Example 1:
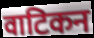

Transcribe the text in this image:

वाटिकन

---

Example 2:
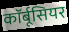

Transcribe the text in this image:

कॉर्बूसियर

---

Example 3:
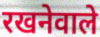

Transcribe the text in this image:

रखनेवाले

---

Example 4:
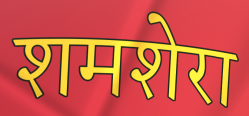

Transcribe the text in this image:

शमशेरा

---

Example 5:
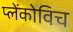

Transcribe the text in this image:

प्लेंकोविच